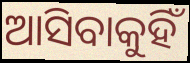
ଆସିବାକୁହିଁ